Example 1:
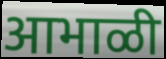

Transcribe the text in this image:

आभाळी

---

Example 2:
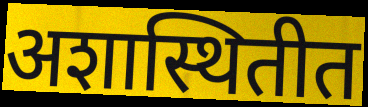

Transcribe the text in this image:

अशास्थितीत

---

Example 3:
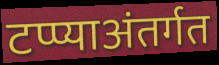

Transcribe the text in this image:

टप्प्याअंतर्गत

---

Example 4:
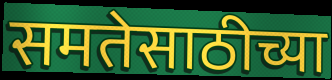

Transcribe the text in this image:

समतेसाठीच्या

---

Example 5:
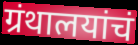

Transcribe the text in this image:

ग्रंथालयांचं